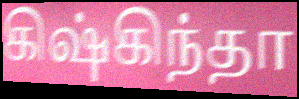
கிஷ்கிந்தா